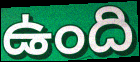
ఉంది